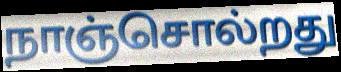
நாஞ்சொல்றது